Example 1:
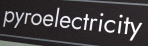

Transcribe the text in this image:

pyroelectricity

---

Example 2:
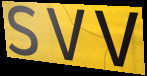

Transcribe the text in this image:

svv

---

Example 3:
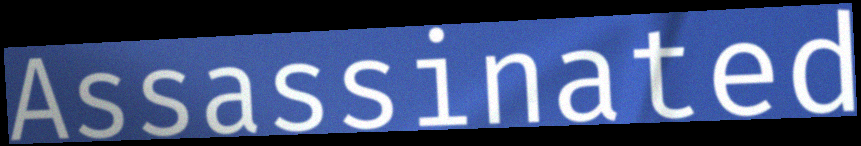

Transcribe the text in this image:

Assassinated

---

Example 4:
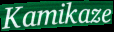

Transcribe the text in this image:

Kamikaze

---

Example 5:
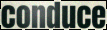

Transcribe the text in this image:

conduce